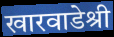
खारवाडेश्री